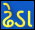
ઢેડા